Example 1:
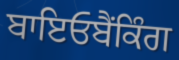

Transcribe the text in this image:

ਬਾਇਓਬੈਂਕਿੰਗ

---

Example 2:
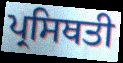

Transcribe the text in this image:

ਪ੍ਰਸਿਥਤੀ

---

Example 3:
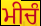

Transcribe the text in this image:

ਮੀਚੰ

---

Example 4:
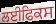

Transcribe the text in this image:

ਲਈਫਿਕਸ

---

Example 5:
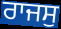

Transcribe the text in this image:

ਰਾਜਸੁ